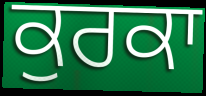
ਕੁਰਕਾ